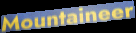
Mountaineer